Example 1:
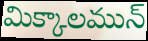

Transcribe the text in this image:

మిక్కాలమున్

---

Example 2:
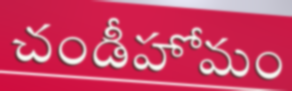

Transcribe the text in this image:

చండీహోమం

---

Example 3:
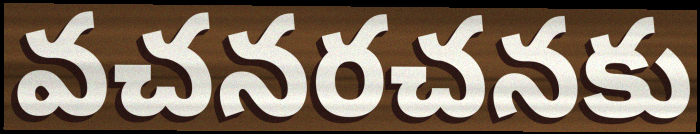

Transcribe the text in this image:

వచనరచనకు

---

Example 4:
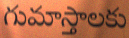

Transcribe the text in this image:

గుమాస్తాలకు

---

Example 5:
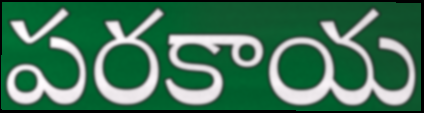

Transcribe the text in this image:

పరకాయ